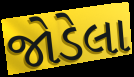
જોડેલા